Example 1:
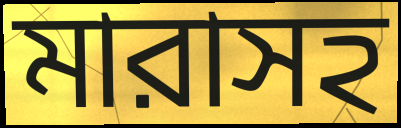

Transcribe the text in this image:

মারাসহ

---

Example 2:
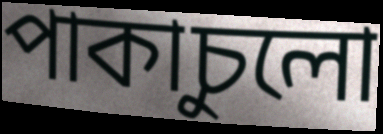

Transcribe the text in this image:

পাকাচুলো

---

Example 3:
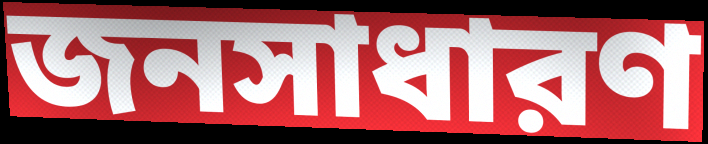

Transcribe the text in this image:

জনসাধারণ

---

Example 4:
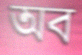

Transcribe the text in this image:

অব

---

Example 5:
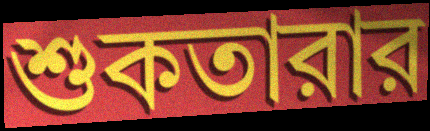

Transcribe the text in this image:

শুকতারার